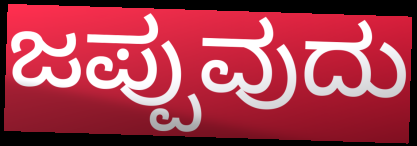
ಜಪ್ಪುವುದು